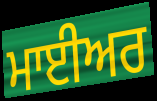
ਮਾਈਅਰ